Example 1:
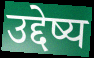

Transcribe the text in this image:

उद्देष्य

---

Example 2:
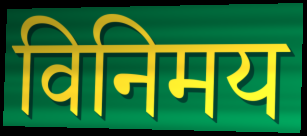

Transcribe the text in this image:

विनिमय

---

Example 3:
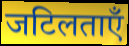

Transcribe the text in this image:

जटिलताएँ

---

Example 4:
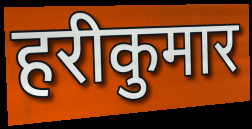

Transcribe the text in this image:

हरीकुमार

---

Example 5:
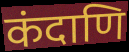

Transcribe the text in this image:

कंदाणि